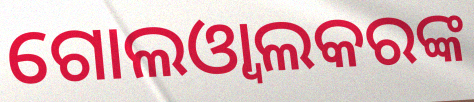
ଗୋଲଓ୍ଵାଲକରଙ୍କ